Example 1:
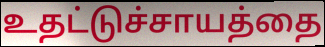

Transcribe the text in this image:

உதட்டுச்சாயத்தை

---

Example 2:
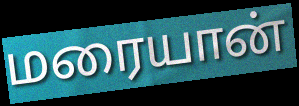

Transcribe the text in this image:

மரையான்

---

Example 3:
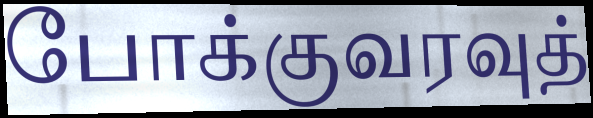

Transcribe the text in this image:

போக்குவரவுத்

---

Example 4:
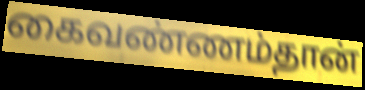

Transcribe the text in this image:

கைவண்ணம்தான்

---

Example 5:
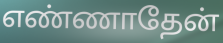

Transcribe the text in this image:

எண்ணாதேன்